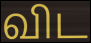
விட